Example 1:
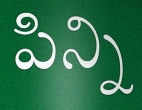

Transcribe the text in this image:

పిన్ని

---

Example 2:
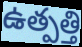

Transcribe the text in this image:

ఉత్పత్తి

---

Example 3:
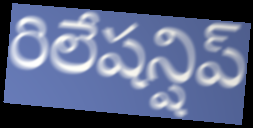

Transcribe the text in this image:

రిలేషన్షిప్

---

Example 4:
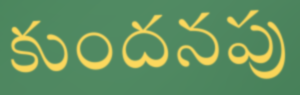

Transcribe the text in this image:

కుందనపు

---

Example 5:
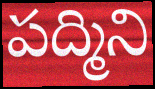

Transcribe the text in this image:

పద్మిని